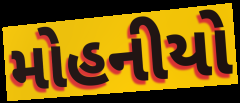
મોહનીયો